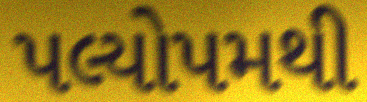
પલ્યોપમથી